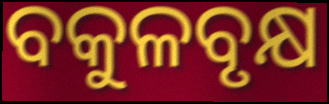
ବକୁଳବୃକ୍ଷ